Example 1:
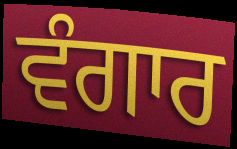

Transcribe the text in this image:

ਵੰਗਾਰ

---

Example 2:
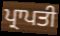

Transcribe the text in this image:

ਪ੍ਰਾਪਤੀ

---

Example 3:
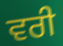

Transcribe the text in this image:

ਵਰੀ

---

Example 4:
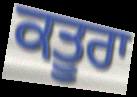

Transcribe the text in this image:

ਕਤੂਰਾ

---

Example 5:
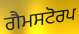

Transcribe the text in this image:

ਗੈਮਸਟੋਰਪ